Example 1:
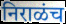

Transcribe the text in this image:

निराळंच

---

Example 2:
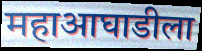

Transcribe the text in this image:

महाआघाडीला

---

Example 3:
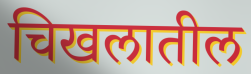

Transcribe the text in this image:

चिखलातील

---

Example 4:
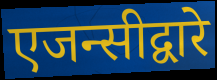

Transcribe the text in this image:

एजन्सीद्वारे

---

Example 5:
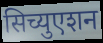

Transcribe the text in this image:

सिच्युएशन